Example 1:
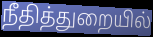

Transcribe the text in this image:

நீதித்துறையில்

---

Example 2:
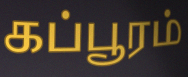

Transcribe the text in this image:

கப்பூரம்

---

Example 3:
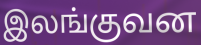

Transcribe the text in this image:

இலங்குவன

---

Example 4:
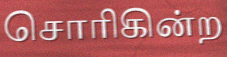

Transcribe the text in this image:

சொரிகின்ற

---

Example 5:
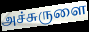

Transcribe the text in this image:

அச்சுருளை